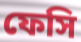
ফেসি